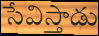
సేవిస్తాడు